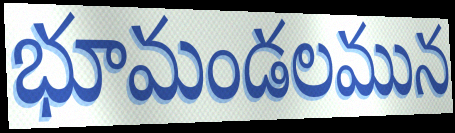
భూమండలమున